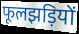
फूलझड़ियों